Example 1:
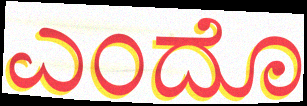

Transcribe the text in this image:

ಎಂದೊ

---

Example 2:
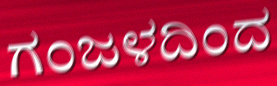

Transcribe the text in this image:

ಗಂಜಳದಿಂದ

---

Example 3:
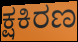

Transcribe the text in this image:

ಕ್ಷಕಿರಣ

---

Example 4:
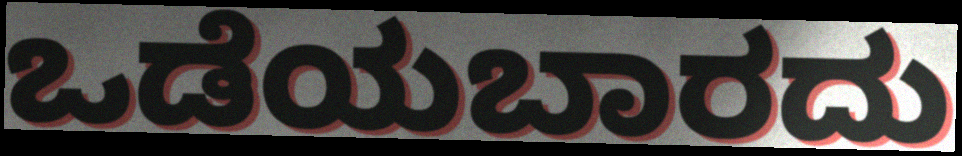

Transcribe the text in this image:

ಒಡೆಯಬಾರದು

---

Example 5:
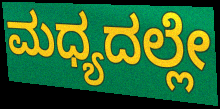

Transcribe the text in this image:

ಮಧ್ಯದಲ್ಲೇ